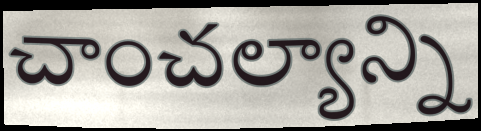
చాంచల్యాన్ని